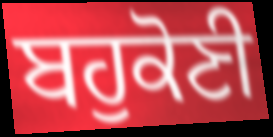
ਬਹੁਕੋਣੀ